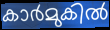
കാർമുകിൽ